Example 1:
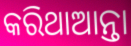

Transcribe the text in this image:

କରିଥାଆନ୍ତା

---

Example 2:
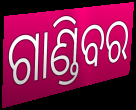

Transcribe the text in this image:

ଗାଣ୍ଡିବର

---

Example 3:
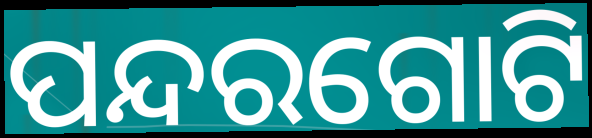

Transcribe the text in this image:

ପନ୍ଦରଗୋଟି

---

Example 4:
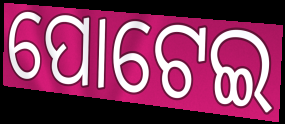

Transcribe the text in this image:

ପୋଟେଇ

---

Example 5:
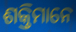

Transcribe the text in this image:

ଶକ୍ତିମାନେ